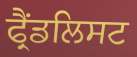
ਫ੍ਰੈਂਡਲਿਸਟ